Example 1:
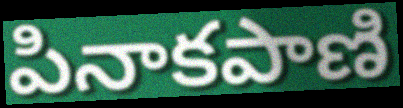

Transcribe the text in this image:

పినాకపాణి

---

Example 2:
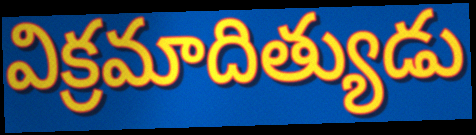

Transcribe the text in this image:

విక్రమాదిత్యుడు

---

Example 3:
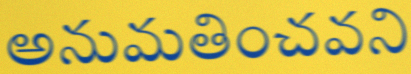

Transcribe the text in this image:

అనుమతించవని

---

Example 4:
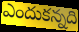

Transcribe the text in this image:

ఎందుకన్నది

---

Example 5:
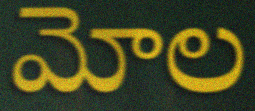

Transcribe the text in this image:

మోల